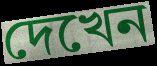
দেখেন